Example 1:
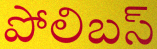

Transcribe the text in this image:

పోలిబస్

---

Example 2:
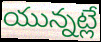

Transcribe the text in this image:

యున్నట్లే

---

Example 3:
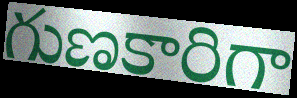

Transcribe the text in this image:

గుణకారిగా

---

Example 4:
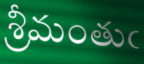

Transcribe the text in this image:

శ్రీమంతుఁ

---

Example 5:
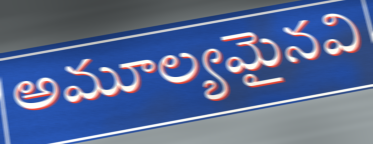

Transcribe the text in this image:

అమూల్యమైనవి